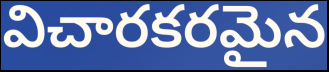
విచారకరమైన